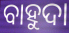
ବାହୁଦା